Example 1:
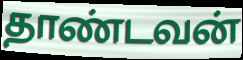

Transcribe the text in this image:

தாண்டவன்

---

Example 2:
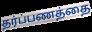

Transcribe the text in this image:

தர்ப்பணத்தை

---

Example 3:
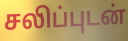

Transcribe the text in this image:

சலிப்புடன்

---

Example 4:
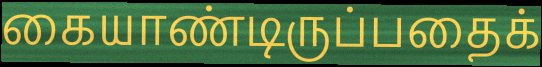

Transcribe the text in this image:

கையாண்டிருப்பதைக்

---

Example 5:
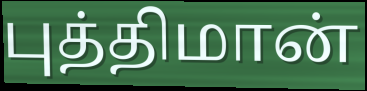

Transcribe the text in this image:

புத்திமான்